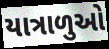
યાત્રાળુઓ